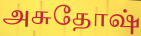
அசுதோஷ்